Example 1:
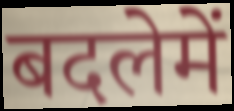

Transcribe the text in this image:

बदलेमें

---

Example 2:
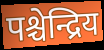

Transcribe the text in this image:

पश्चेन्द्रिय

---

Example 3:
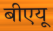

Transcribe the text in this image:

बीएयू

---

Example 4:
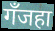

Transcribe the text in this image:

गँजहा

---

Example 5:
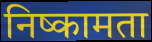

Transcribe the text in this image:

निष्कामता